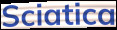
Sciatica